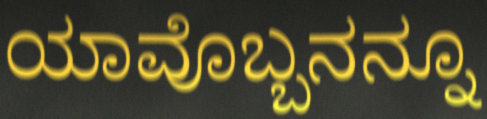
ಯಾವೊಬ್ಬನನ್ನೂ